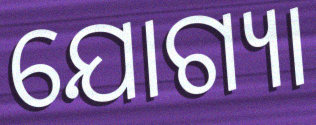
ଯୋଗ୍ୟା